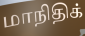
மாநிதிக்